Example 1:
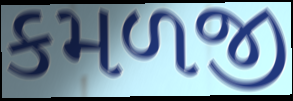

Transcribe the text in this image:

કમળજી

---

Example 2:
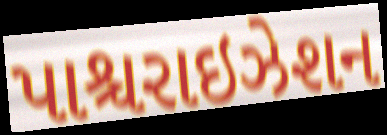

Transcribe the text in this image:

પાશ્ચરાઇઝેશન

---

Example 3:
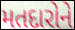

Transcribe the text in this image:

મતદારોને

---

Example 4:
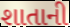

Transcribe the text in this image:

શાતાની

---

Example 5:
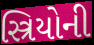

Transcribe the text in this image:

સ્ત્રિયોની